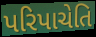
પરિપાચેતિ